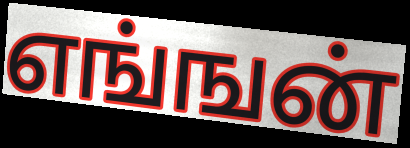
எங்ஙன்